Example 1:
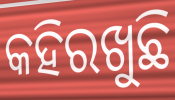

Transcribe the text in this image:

କହିରଖୁଛି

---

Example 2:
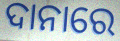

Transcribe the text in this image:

ଦାନାରେ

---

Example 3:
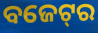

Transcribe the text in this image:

ବଜେଟ୍‌ର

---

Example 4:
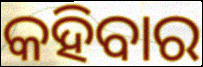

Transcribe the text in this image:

କହିବାର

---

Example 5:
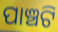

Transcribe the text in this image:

ପାଞ୍ଚଟି